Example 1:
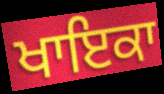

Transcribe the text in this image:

ਖਾਇਕਾ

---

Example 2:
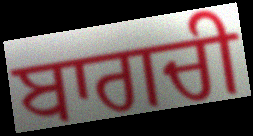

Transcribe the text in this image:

ਬਾਗਚੀ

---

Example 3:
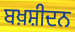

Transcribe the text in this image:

ਬਖ਼ਸ਼ੀਦਨ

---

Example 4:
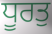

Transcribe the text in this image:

ਧੂਰਤੁ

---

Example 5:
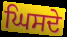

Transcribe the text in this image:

ਘਿਸਦੇ